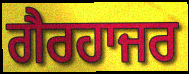
ਗੈਰਹਾਜਰ